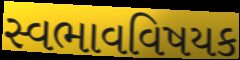
સ્વભાવવિષયક